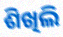
ଶିଖିଲି